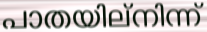
പാതയില്നിന്ന്